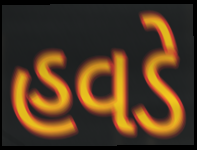
હવડે